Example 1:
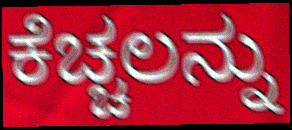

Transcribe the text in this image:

ಕೆಚ್ಚಲನ್ನು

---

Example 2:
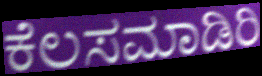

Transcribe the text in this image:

ಕೆಲಸಮಾಡಿರಿ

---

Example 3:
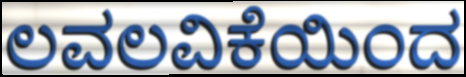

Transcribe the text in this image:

ಲವಲವಿಕೆಯಿಂದ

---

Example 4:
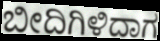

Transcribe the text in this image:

ಬೀದಿಗಿಳಿದಾಗ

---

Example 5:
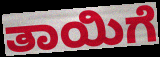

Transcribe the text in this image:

ತಾಯಿಗೆ